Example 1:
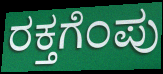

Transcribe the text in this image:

ರಕ್ತಗೆಂಪು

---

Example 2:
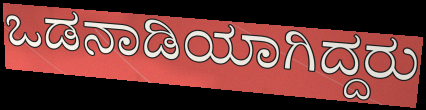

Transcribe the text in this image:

ಒಡನಾಡಿಯಾಗಿದ್ದರು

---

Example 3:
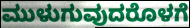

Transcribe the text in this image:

ಮುಳುಗುವುದರೊಳಗೆ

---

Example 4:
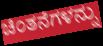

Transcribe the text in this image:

ಚಿಂತನೆಗಳನ್ನು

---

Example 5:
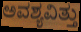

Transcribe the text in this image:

ಅವಶ್ಯವಿತ್ತು